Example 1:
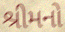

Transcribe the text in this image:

શ્રીમનો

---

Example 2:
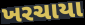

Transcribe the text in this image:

ખરચાયા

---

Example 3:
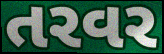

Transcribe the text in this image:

તરવર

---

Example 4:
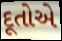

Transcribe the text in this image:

દૂતોએ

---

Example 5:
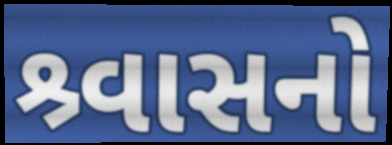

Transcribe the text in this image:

શ્ર્વાસનો